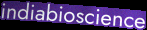
indiabioscience